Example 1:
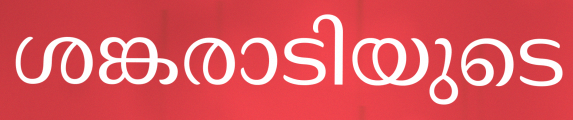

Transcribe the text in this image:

ശങ്കരാടിയുടെ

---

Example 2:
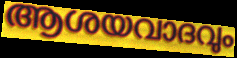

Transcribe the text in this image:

ആശയവാദവും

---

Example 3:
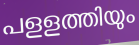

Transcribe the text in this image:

പളളത്തിയും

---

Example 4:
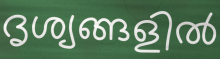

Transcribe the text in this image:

ദൃശ്യങ്ങളിൽ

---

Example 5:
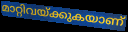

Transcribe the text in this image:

മാറ്റിവയ്ക്കുകയാണ്